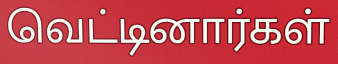
வெட்டினார்கள்